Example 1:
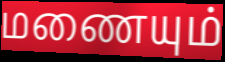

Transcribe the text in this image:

மணையும்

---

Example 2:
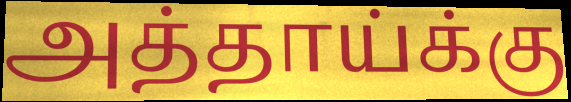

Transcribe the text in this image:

அத்தாய்க்கு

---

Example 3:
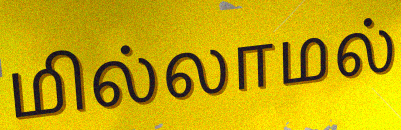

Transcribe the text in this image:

மில்லாமல்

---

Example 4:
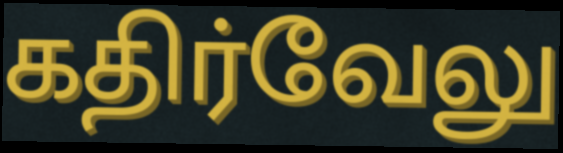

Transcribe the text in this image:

கதிர்வேலு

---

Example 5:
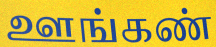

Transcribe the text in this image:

ஊங்கண்